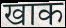
खाक